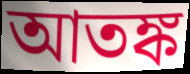
আতঙ্ক